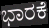
ಭಾರಕೆ